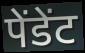
पेंडेंट